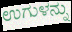
ಉಗುಳನ್ನು